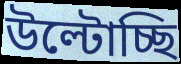
উল্টোচ্ছি